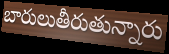
బారులుతీరుతున్నారు